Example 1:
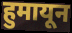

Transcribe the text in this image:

हुमायून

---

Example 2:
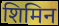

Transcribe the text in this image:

शिमिन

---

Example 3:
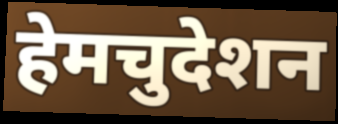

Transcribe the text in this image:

हेमचुदेशन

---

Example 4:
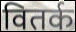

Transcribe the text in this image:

वितर्क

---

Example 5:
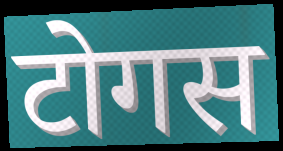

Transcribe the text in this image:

टोगस